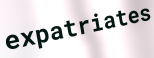
expatriates